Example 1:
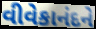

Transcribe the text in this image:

વીવેકાનંદને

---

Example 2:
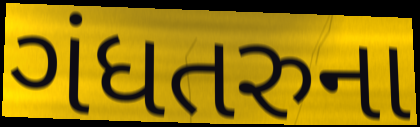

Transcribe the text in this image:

ગંધતરુના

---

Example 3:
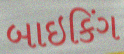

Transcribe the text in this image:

બાઇકિંગ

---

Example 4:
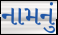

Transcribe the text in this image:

નામનું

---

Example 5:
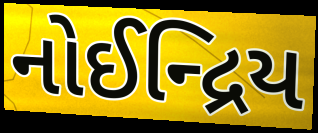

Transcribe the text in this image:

નોઈન્દ્રિય